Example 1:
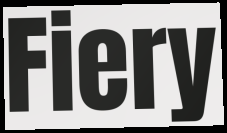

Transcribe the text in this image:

Fiery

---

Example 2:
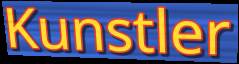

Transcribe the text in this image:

Kunstler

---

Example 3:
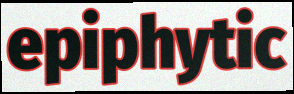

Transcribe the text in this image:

epiphytic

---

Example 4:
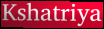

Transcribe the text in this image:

Kshatriya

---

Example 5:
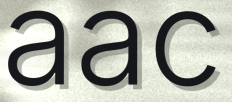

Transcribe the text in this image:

aac